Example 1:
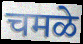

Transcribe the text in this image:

चमळे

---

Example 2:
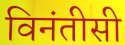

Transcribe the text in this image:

विनंतीसी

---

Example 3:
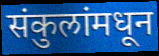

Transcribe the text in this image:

संकुलांमधून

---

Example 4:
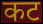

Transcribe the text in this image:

कट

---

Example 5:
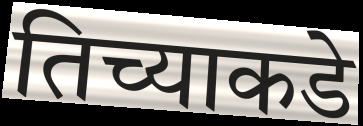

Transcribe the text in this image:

तिच्याकडे